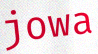
jowa